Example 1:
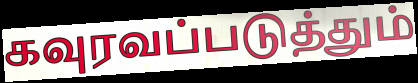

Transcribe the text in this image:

கவுரவப்படுத்தும்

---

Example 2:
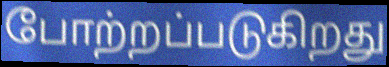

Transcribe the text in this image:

போற்றப்படுகிறது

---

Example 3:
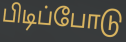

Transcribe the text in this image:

பிடிப்போடு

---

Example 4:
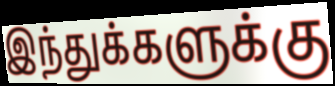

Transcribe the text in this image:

இந்துக்களுக்கு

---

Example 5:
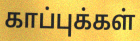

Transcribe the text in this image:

காப்புக்கள்